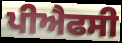
ਪੀਐਫਸੀ